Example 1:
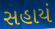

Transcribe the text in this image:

સહાયં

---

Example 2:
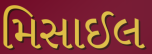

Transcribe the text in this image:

મિસાઈલ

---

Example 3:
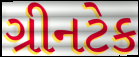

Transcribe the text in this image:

ગ્રીનટેક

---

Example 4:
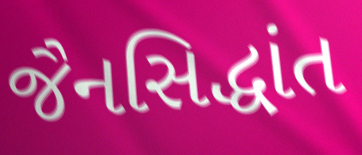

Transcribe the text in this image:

જૈનસિદ્ધાંત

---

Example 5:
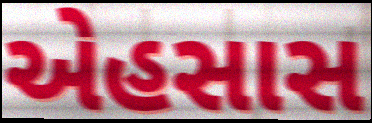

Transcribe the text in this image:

એહસાસ